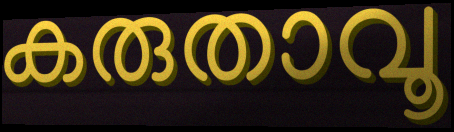
കരുതാവൂ